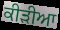
ਕੀੜੀਆ